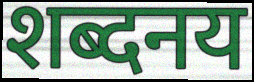
शब्दनय